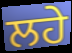
ਲਹੇ